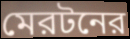
মেরটনের